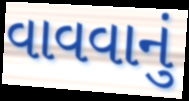
વાવવાનું